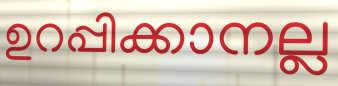
ഉറപ്പിക്കാനല്ല